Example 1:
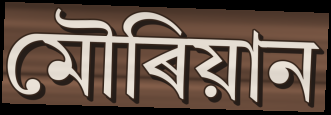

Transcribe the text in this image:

মৌৰিয়ান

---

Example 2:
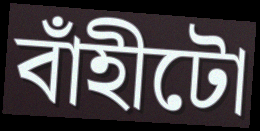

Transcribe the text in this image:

বাঁহীটো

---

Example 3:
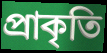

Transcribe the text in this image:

প্ৰাকৃতি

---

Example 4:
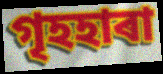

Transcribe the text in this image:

গৃহহাৰা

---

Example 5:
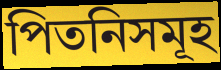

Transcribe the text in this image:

পিতনিসমূহ